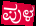
ಪುಳ